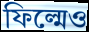
ফিল্মেও